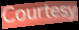
Courtesy